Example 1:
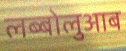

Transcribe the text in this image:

लब्बोलुआब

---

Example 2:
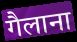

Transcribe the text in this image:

गैलाना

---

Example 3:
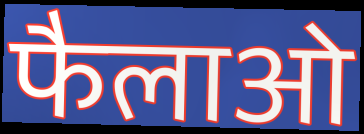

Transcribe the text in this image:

फैलाओ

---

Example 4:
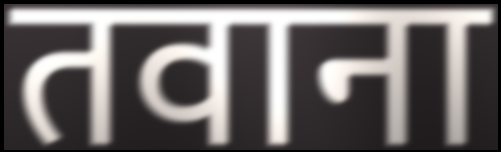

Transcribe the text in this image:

तवाना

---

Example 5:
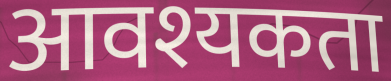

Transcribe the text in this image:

आवश्यकता